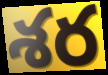
శర